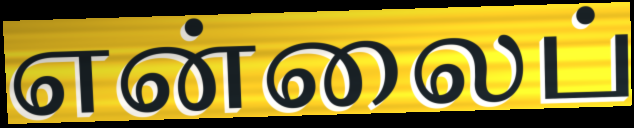
என்லைப்